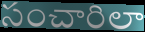
సంచారిలా